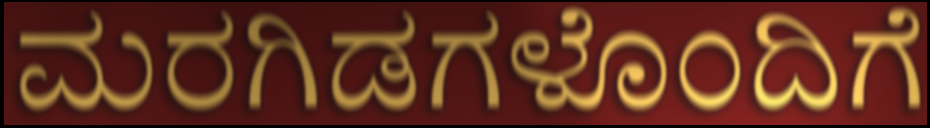
ಮರಗಿಡಗಳೊಂದಿಗೆ